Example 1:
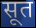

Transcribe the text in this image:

सूत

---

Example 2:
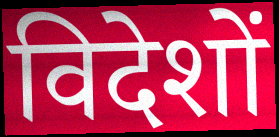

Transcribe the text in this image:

विदेशों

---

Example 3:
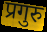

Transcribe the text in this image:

प्रगुरु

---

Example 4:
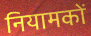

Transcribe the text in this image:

नियामकों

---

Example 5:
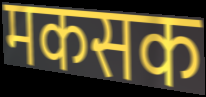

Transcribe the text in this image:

मकसक